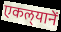
एकल्यानें